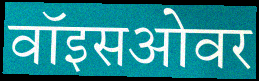
वॉइसओवर